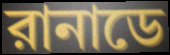
রানাডে